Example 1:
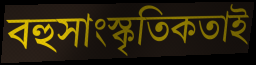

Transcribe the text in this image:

বহুসাংস্কৃতিকতাই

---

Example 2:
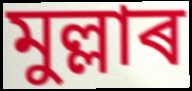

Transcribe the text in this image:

মুল্লাৰ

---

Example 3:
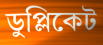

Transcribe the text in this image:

ডুপ্লিকেট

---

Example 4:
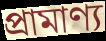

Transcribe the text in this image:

প্ৰামাণ্য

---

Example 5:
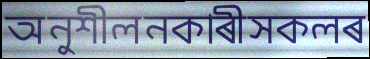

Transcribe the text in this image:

অনুশীলনকাৰীসকলৰ